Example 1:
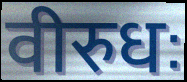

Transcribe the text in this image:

वीरुधः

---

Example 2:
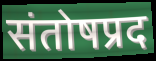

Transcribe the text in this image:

संतोषप्रद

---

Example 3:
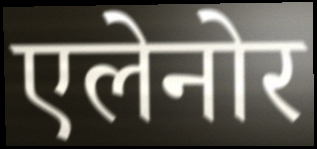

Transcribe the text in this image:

एलेनोर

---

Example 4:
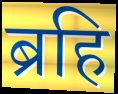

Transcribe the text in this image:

ब्रहि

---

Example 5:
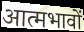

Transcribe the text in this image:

आत्मभावों